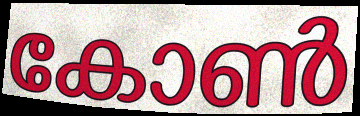
കോൺ